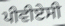
ਪੀਵੀਏਸੀ